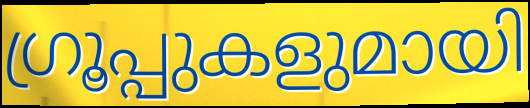
ഗ്രൂപ്പുകളുമായി